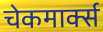
चेकमार्क्स